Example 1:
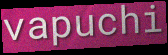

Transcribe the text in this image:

vapuchi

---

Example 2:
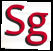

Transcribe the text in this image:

Sg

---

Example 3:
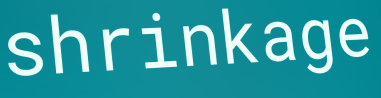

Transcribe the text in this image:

shrinkage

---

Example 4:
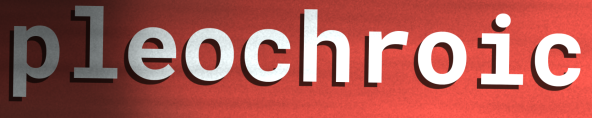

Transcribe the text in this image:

pleochroic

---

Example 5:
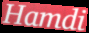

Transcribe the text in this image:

Hamdi